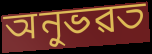
অনুভৱত